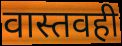
वास्तवही